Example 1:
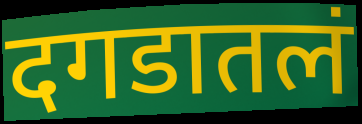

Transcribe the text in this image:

दगडातलं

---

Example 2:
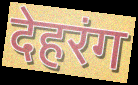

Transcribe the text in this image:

देहरंग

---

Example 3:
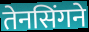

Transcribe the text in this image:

तेनसिंगने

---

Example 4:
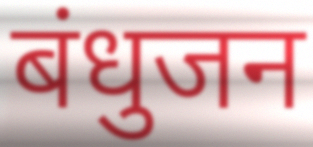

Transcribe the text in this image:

बंधुजन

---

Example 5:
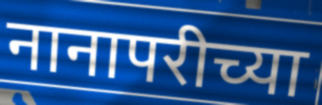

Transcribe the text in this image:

नानापरीच्या